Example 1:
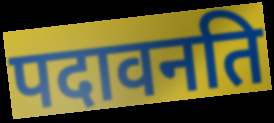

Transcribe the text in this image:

पदावनति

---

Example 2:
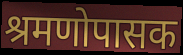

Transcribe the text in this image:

श्रमणोपासक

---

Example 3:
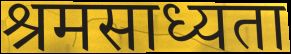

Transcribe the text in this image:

श्रमसाध्यता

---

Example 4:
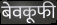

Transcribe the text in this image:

बेवकूफी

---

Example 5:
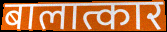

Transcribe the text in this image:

बालात्कार